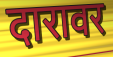
दारावर